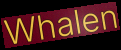
Whalen